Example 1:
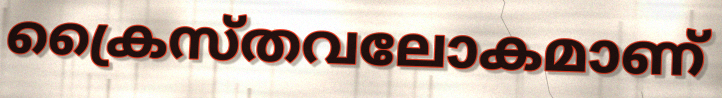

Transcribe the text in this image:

ക്രൈസ്തവലോകമാണ്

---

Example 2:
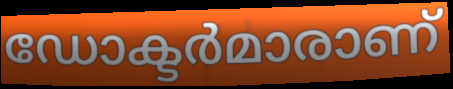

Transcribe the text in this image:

ഡോക്ടർമാരാണ്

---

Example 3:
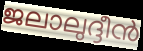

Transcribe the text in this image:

ജലാലുദ്ദീൻ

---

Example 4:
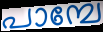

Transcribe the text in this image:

പാമ്പേ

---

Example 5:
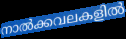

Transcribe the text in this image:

നാൽക്കവലകളിൽ